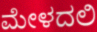
ಮೇಳದಲಿ